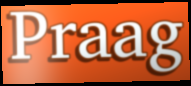
Praag